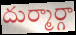
దుర్మార్గా